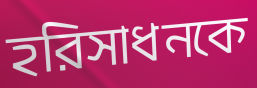
হরিসাধনকে